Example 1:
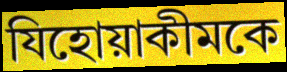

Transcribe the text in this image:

যিহোয়াকীমকে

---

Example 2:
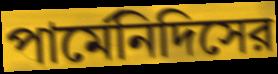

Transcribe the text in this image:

পার্মেনিদিসের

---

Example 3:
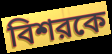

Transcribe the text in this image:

বিশরকে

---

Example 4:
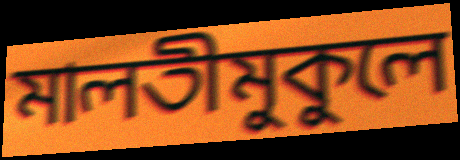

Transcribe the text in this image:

মালতীমুকুলে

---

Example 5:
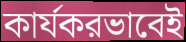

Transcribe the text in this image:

কার্যকরভাবেই